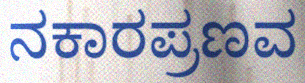
ನಕಾರಪ್ರಣವ